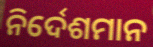
ନିର୍ଦେଶମାନ